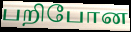
பறிபோன